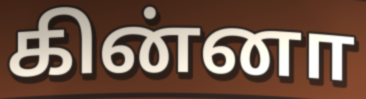
கின்னா